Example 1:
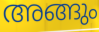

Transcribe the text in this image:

അങ്ങും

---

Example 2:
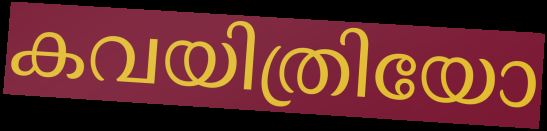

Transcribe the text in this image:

കവയിത്രിയോ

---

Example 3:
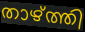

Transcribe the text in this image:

താഴ്ത്തി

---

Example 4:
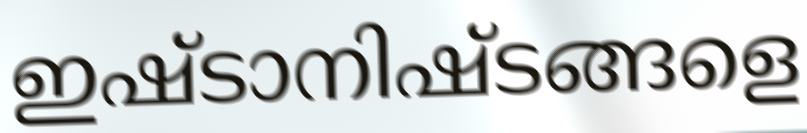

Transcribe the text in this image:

ഇഷ്ടാനിഷ്ടങ്ങളെ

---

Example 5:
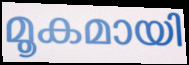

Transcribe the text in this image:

മൂകമായി